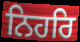
ਨਿਹਰਿ